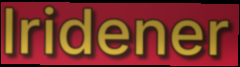
lridener